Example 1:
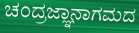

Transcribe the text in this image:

ಚಂದ್ರಜ್ಞಾನಾಗಮದ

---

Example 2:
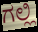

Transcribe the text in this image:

ಗಲ್ಲಿ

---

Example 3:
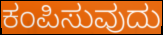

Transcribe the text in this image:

ಕಂಪಿಸುವುದು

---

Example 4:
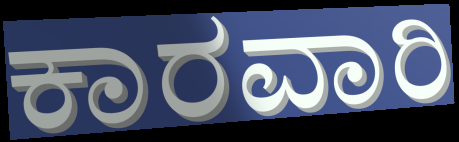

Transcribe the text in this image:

ಕಾರವಾರಿ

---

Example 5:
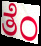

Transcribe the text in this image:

ತೆಂ